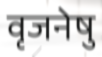
वृजनेषु